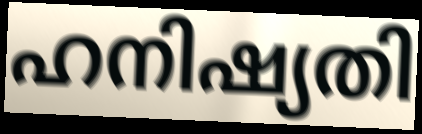
ഹനിഷ്യതി